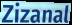
Zizanal